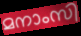
മനാംസി